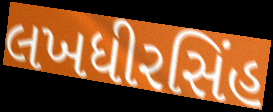
લખધીરસિંહ